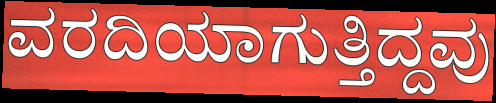
ವರದಿಯಾಗುತ್ತಿದ್ದವು